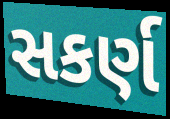
સકર્ણ